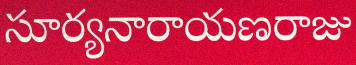
సూర్యనారాయణరాజు